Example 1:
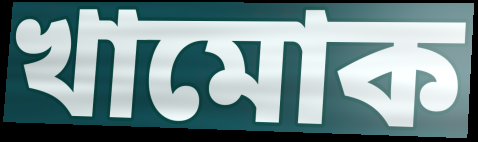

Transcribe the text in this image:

খামোক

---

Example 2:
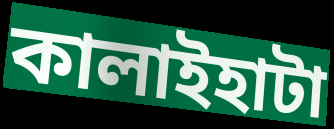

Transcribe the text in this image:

কালাইহাটা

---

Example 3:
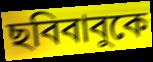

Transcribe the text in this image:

ছবিবাবুকে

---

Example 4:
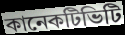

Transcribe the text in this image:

কানেকটিভিটি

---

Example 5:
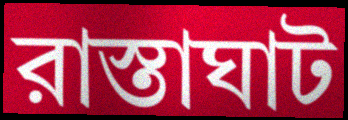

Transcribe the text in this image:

রাস্তাঘাট